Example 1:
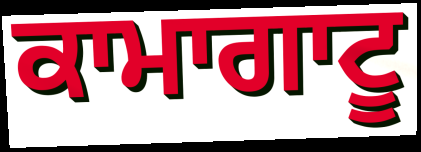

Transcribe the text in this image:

ਕਾਮਾਗਾਟੂ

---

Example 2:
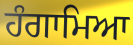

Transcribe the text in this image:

ਹੰਗਾਮਿਆ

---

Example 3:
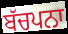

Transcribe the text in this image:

ਬੱਚਪਨਾ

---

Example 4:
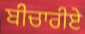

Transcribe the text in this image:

ਬੀਚਾਰੀਏ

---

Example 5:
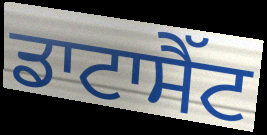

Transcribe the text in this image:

ਡਾਟਾਸੈੱਟ